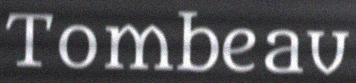
Tombeau